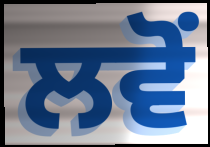
ਲਵੋਂ